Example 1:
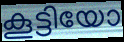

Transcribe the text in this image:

കൂട്ടിയോ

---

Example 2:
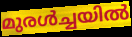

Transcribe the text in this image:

മുരൾച്ചയിൽ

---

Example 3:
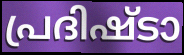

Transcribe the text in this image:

പ്രദിഷ്ടാ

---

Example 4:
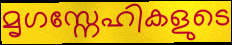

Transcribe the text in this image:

മൃഗസ്നേഹികളുടെ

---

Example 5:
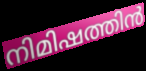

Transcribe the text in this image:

നിമിഷത്തിൻ